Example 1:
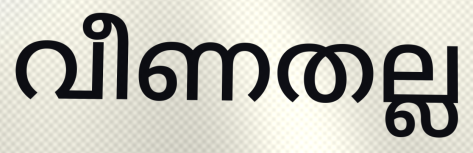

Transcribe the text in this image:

വീണതല്ല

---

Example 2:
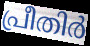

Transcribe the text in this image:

പ്രീതിർ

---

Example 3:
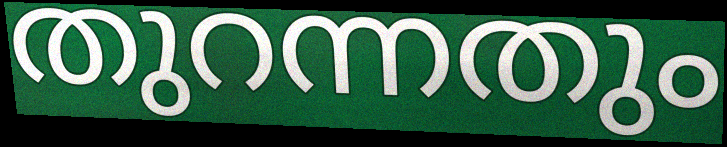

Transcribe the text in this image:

തുറന്നതും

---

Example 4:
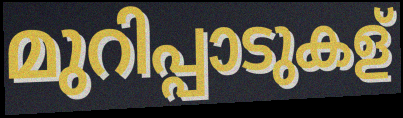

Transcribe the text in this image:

മുറിപ്പാടുകള്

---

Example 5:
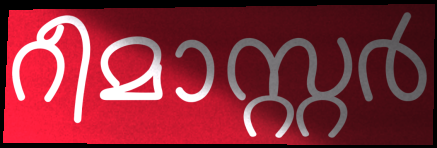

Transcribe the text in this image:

റീമാസ്റ്റർ